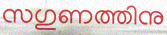
സഗുണത്തിനു